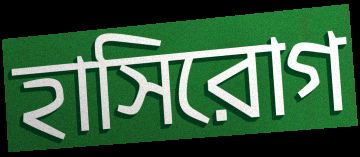
হাসিরোগ